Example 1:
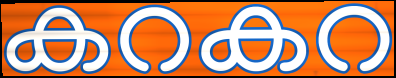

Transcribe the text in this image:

കറകറ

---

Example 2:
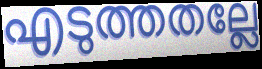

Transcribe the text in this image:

എടുത്തതല്ലേ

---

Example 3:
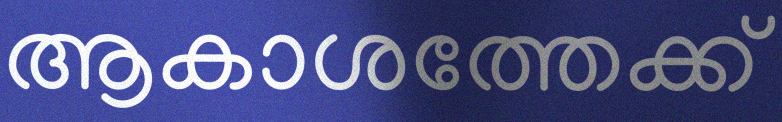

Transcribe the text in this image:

ആകാശത്തേക്ക്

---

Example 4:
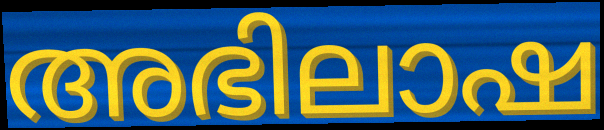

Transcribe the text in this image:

അഭിലാഷ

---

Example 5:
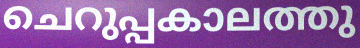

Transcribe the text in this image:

ചെറുപ്പകാലത്തു